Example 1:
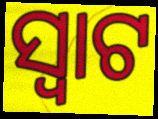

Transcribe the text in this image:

ସ୍ୱାଟ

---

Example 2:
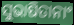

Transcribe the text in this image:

ସୁଭାଷିତାନାଂ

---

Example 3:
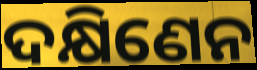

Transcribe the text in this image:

ଦକ୍ଷିଣେନ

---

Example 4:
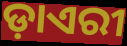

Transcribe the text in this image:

ଡ଼ାଏରୀ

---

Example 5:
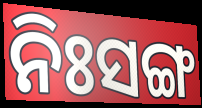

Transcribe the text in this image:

ନିଃସଙ୍ଗ